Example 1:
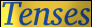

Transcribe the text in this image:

Tenses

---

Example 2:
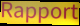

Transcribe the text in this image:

Rapport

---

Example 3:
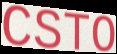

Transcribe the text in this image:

CSTO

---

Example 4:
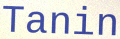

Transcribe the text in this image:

Tanin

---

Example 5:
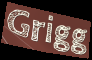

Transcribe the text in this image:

Grigg